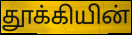
தூக்கியின்